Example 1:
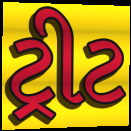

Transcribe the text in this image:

ટ્રીટ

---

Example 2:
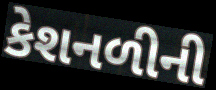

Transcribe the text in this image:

કેશનળીની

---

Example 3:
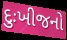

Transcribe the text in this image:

દુઃખીજનો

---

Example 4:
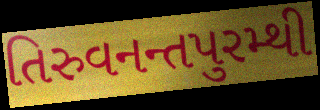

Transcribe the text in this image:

તિરુવનન્તપુરમ્થી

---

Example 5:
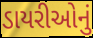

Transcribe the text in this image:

ડાયરીઓનું